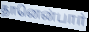
தானென்பார்